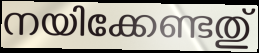
നയിക്കേണ്ടതു്